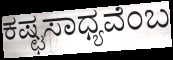
ಕಷ್ಟಸಾಧ್ಯವೆಂಬ